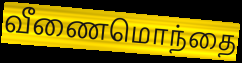
வீணைமொந்தை